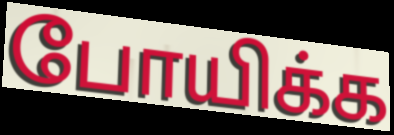
போயிக்க